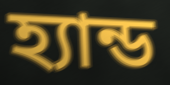
হ্যান্ড